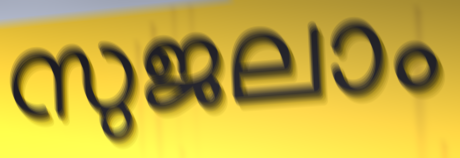
സുജലാം